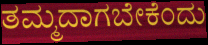
ತಮ್ಮದಾಗಬೇಕೆಂದು